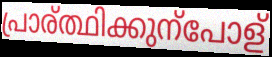
പ്രാര്ത്ഥിക്കുന്പോള്